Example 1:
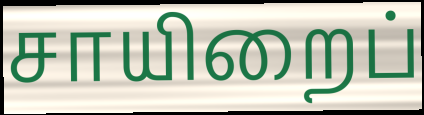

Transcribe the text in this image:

சாயிறைப்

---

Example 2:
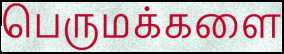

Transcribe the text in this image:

பெருமக்களை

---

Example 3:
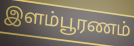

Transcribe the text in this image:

இளம்பூரணம்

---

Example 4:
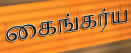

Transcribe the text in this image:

கைங்கர்ய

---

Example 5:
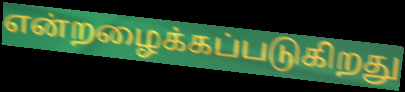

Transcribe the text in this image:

என்றழைக்கப்படுகிறது